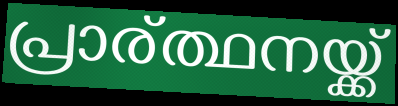
പ്രാര്ത്ഥനയ്ക്ക്